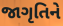
જાગૃતિને